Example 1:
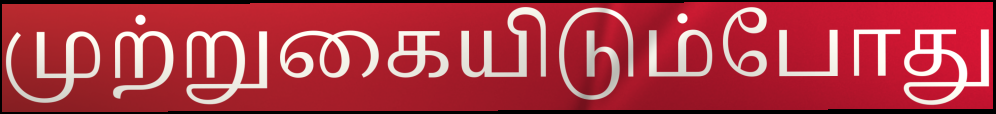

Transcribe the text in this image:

முற்றுகையிடும்போது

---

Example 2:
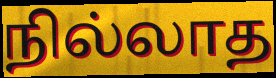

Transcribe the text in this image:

நில்லாத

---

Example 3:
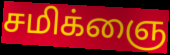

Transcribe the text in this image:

சமிக்ஞை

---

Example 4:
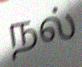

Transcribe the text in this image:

நல்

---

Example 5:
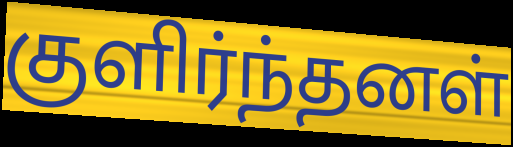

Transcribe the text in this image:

குளிர்ந்தனள்